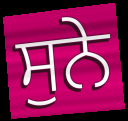
ਸੁਨੇ